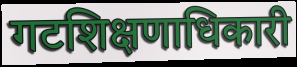
गटशिक्षणाधिकारी